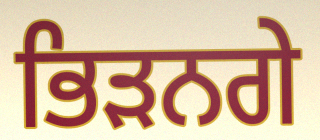
ਭਿੜਨਗੇ